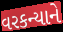
વરકન્યાને